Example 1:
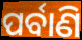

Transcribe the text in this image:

ପର୍ବାଣି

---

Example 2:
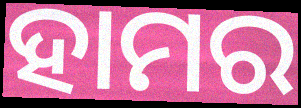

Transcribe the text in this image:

ହାମର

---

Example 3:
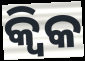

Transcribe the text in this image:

କ୍ୱିକ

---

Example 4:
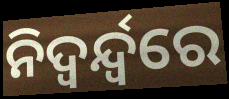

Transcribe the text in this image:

ନିଦ୍ଵର୍ନ୍ଦ୍ୱରେ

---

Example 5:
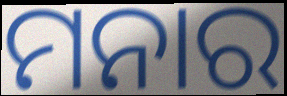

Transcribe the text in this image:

ମନାର